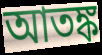
আতঙ্ক